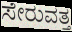
ಸೇರುವತ್ತ